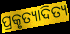
ପ୍ରକୃତ୍ୟାଦିତ୍ୟ